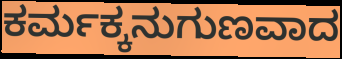
ಕರ್ಮಕ್ಕನುಗುಣವಾದ